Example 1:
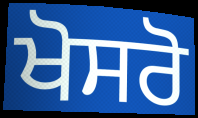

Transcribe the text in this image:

ਖੋਸਰੋ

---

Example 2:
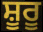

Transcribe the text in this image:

ਸ਼ੂਰੂ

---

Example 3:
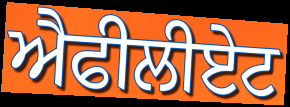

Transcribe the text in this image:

ਐਫੀਲੀਏਟ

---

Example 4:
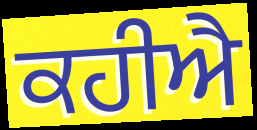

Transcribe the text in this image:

ਕਹੀਐ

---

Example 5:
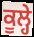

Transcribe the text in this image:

ਕੂਲ੍ਹੇ